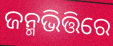
ଜନ୍ମଭିତ୍ତିରେ